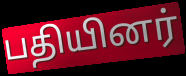
பதியினர்